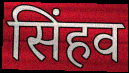
सिंहव